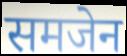
समजेन